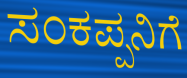
ಸಂಕಪ್ಪನಿಗೆ